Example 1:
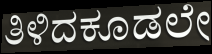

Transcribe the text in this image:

ತಿಳಿದಕೂಡಲೇ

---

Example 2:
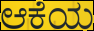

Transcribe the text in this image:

ಆಕೆಯ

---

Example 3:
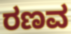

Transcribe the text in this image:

ರಣವ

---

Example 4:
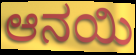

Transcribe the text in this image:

ಆನಯಿ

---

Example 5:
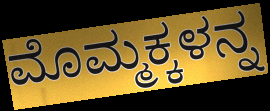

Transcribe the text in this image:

ಮೊಮ್ಮಕ್ಕಳನ್ನ